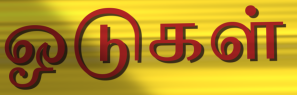
ஓடுகள்